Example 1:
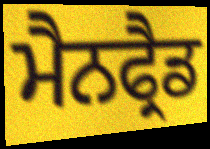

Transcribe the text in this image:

ਮੈਨਫ੍ਰੈਡ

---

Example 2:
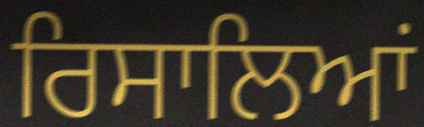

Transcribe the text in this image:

ਰਿਸਾਲਿਆਂ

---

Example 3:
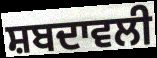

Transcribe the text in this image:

ਸ਼ਬਦਾਵਲੀ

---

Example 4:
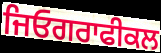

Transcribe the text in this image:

ਜਿਓਗਰਾਫੀਕਲ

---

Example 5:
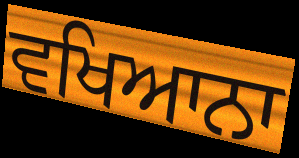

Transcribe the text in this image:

ਵਖਿਆਨਾ